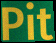
Pit